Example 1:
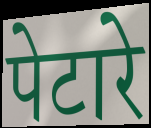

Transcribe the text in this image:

पेटारे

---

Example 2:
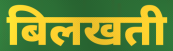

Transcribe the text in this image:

बिलखती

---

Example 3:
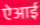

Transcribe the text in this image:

ऐआई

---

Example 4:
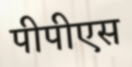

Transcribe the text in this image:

पीपीएस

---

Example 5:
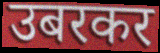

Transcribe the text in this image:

उबरकर